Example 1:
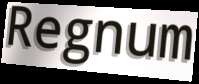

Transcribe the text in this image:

Regnum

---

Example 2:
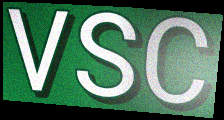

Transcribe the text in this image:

VSC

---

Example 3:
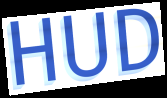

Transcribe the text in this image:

HUD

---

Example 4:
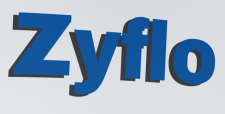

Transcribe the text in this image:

Zyflo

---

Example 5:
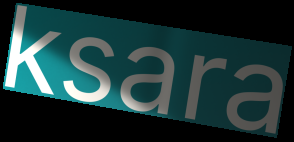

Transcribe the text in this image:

ksara